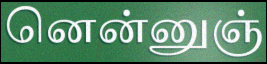
னென்னுஞ்